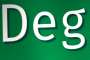
Deg